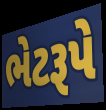
ભેટરૂપે